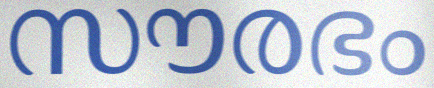
സൗരഭം